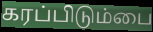
கரப்பிடும்பை